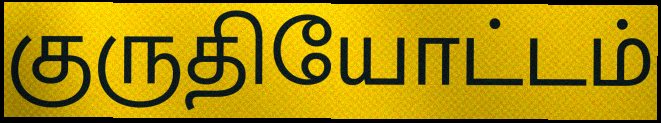
குருதியோட்டம்